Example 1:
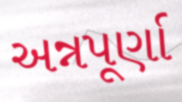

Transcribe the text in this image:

અન્નપૂર્ણા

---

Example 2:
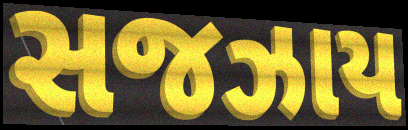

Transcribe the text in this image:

સજઝાય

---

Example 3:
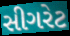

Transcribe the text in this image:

સીગરેટ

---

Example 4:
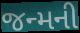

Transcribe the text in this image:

જન્મની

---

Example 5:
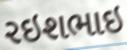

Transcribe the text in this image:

રઇશભાઇ